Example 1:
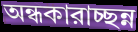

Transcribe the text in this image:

অন্ধকারাচ্ছন্ন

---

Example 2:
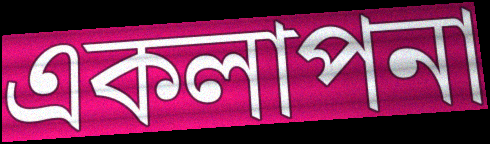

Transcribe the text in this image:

একলাপনা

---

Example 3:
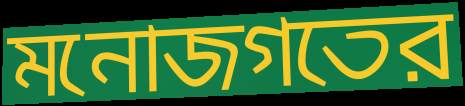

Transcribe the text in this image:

মনোজগতের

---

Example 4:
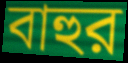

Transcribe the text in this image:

বাহুর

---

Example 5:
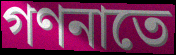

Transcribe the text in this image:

গণনাতে